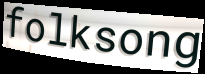
folksong